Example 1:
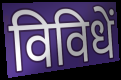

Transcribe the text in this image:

विविधें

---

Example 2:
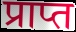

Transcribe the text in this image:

प्राप्‍त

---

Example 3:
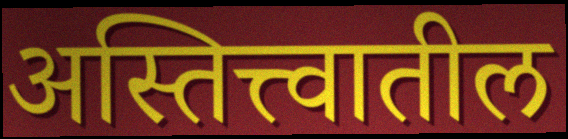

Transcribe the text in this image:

अस्तित्त्वातील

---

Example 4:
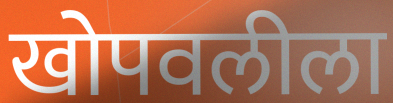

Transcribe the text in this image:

खोपवलीला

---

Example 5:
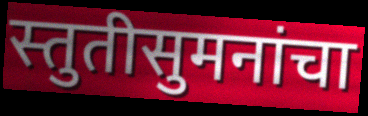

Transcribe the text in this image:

स्तुतीसुमनांचा